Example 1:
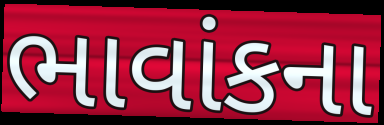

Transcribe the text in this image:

ભાવાંકના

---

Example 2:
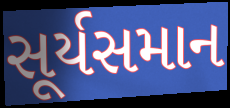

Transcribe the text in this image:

સૂર્યસમાન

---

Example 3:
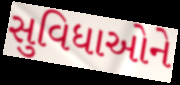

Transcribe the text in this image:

સુવિધાઓને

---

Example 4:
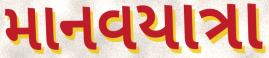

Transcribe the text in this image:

માનવયાત્રા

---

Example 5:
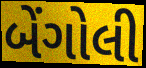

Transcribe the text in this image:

બેંગોલી